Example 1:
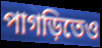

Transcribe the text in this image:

পাগড়িতেও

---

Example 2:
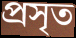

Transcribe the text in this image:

প্রসৃত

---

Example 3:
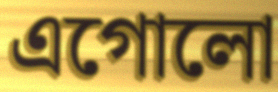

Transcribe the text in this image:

এগোলো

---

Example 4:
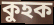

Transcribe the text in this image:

কুহক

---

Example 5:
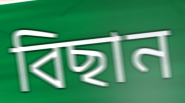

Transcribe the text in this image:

বিছান